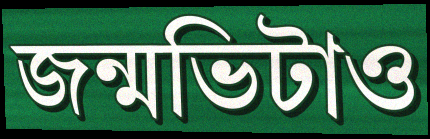
জন্মভিটাও